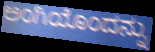
ಅಂಗಿಯೊಂದನ್ನು